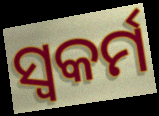
ସ୍ଵକର୍ମ